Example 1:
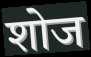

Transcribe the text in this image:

शोज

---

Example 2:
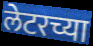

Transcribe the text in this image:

लेटरच्या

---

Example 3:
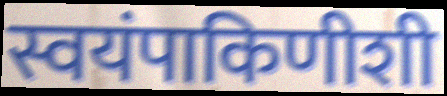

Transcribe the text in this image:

स्वयंपाकिणीशी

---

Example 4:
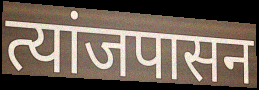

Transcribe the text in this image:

त्यांजपासन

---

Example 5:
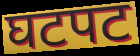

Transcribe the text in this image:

घटपट